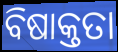
ବିଷାକ୍ତତା